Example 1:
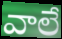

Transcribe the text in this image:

వాలే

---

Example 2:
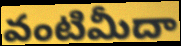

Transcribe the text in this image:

వంటిమీదా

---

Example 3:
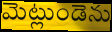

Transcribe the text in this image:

మెట్లుండెను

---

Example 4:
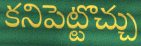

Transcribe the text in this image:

కనిపెట్టొచ్చు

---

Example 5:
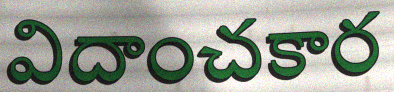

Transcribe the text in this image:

విదాంచకార